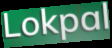
Lokpal